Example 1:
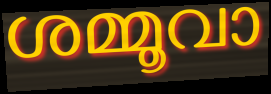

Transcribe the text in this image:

ശമ്മൂവാ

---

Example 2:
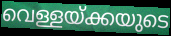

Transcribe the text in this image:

വെള്ളയ്ക്കയുടെ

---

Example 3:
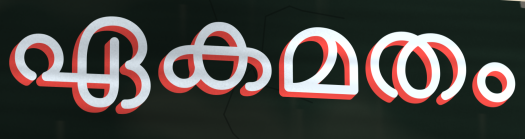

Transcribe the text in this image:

ഏകമതം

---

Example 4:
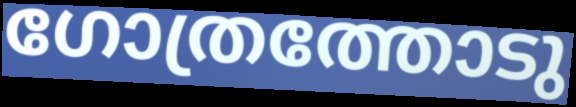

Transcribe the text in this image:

ഗോത്രത്തോടു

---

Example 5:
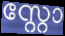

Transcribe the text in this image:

സ്റ്റോ